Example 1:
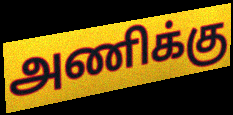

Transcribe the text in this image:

அணிக்கு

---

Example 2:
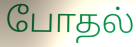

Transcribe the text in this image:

போதல்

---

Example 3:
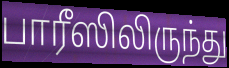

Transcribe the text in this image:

பாரீஸிலிருந்து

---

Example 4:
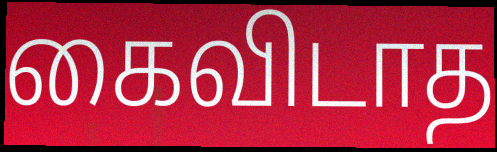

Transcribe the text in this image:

கைவிடாத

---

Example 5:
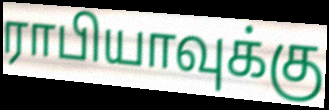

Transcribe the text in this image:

ராபியாவுக்கு